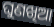
ଘୁଣଖିଆ